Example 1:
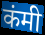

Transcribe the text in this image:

कंमी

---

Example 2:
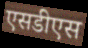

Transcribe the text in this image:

एसडीएस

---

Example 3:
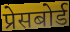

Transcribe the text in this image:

प्रेसबोर्ड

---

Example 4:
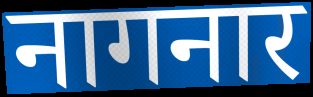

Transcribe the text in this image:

नागनार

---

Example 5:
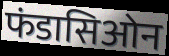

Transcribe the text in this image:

फंडासिओन